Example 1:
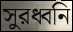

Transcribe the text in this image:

সুরধ্বনি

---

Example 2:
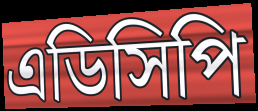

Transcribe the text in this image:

এডিসিপি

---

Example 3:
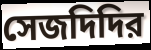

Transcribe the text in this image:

সেজদিদির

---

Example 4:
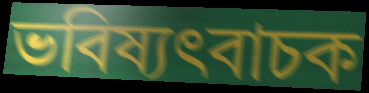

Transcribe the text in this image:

ভবিষ্যৎবাচক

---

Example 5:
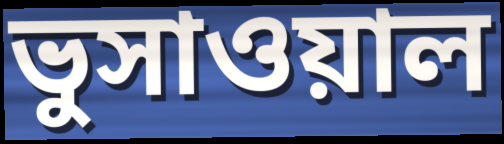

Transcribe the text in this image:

ভুসাওয়াল